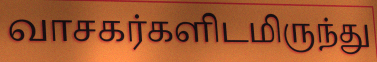
வாசகர்களிடமிருந்து